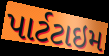
પાર્ટટાઇમ